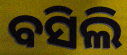
ବସିଲି